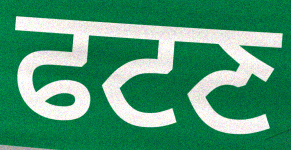
ਫਟਣ